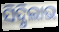
ସିଦ୍ଧିଲାଭ